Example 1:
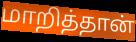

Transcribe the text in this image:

மாறித்தான்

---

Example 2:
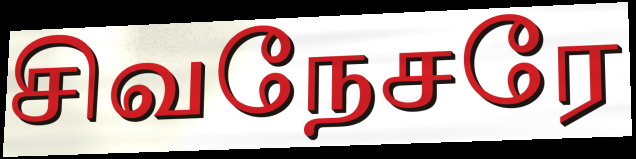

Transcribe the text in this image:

சிவநேசரே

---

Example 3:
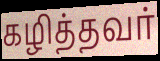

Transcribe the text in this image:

கழித்தவர்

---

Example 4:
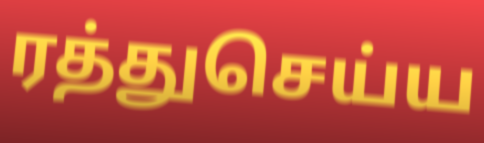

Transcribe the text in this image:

ரத்துசெய்ய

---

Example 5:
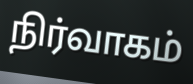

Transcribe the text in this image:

நிர்வாகம்